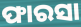
ଫାରସା